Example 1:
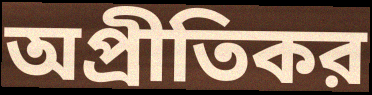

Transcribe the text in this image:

অপ্রীতিকর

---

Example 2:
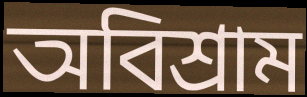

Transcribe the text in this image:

অবিশ্রাম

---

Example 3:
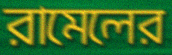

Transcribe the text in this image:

রামেলের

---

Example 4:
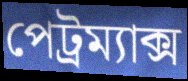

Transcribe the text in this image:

পেট্রম্যাক্স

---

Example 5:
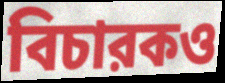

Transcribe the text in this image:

বিচারকও